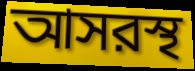
আসরস্থ